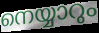
നെയ്യാറും